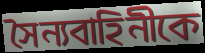
সৈন্যবাহিনীকে